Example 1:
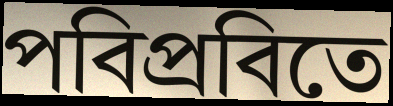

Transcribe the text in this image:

পবিপ্রবিতে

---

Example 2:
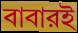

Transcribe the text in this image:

বাবারই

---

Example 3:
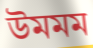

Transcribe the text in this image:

উমমম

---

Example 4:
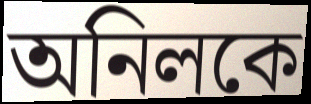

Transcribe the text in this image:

অনিলকে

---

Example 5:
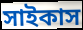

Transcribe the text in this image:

সাইকাস